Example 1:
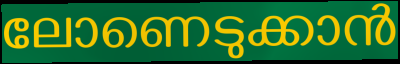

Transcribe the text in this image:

ലോണെടുക്കാൻ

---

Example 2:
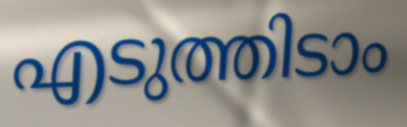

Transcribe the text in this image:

എടുത്തിടാം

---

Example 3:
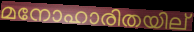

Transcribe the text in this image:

മനോഹാരിതയില്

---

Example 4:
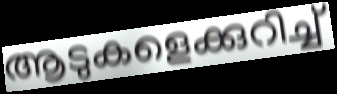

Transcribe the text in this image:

ആടുകളെക്കുറിച്ച്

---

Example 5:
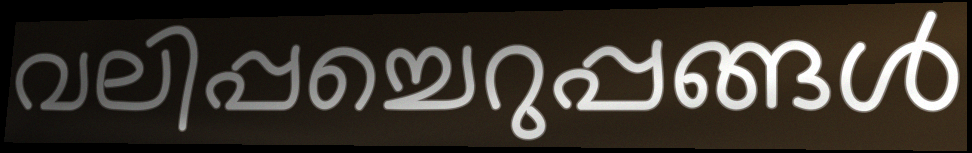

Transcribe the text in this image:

വലിപ്പച്ചെറുപ്പങ്ങൾ